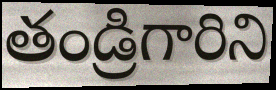
తండ్రిగారిని